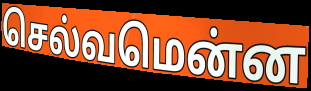
செல்வமென்ன